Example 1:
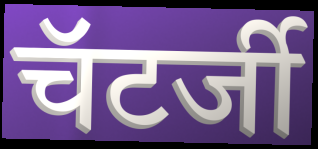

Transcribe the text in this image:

चॅटर्जी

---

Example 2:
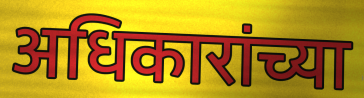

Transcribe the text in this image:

अधिकारांच्या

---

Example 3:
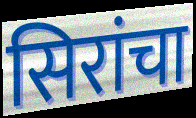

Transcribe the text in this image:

सिरांचा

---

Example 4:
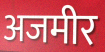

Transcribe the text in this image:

अजमीर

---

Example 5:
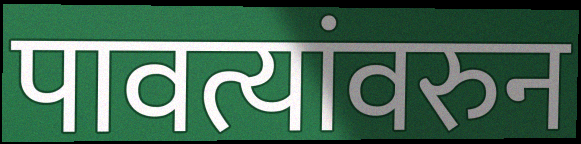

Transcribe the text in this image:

पावत्यांवरुन